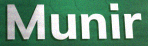
Munir